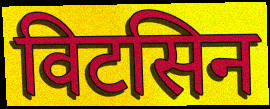
विटसिन